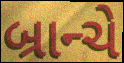
બ્રાન્ચે